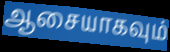
ஆசையாகவும்